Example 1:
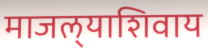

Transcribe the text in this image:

माजल्याशिवाय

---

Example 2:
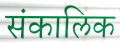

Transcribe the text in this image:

संकालिक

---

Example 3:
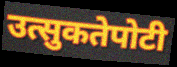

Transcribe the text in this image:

उत्सुकतेपोटी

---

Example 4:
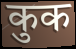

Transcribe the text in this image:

कुक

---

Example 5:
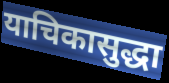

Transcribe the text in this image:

याचिकासुद्धा